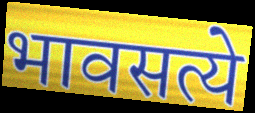
भावसत्ये